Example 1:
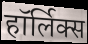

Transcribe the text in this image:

हॉर्लिक्स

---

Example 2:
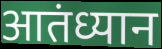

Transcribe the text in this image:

आतंध्यान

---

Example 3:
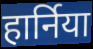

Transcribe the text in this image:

हार्निया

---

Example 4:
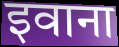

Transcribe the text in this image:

इवाना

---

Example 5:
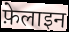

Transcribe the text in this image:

फ़ेलाइन